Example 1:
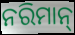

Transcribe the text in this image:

ନରିମାନ୍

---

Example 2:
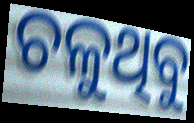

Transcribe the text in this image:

ଚଳୁଥିବୁ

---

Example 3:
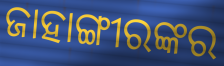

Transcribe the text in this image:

ଜାହାଙ୍ଗୀରଙ୍କର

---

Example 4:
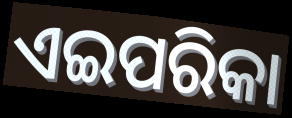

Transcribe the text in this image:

ଏଇପରିକା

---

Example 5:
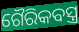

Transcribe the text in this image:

ଗୈରିକବସ୍ତ୍ର